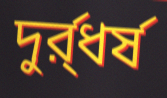
দুর্র্ধর্ষ